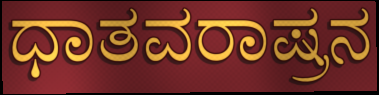
ಧಾತವರಾಷ್ರನ